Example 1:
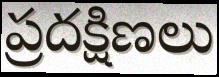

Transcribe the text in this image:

ప్రదక్షిణలు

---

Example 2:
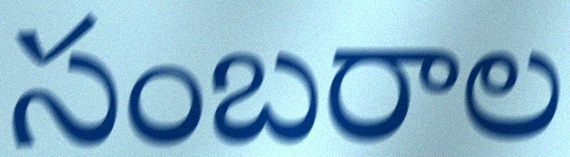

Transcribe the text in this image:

సంబరాల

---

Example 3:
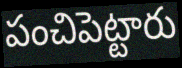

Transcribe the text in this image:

పంచిపెట్టారు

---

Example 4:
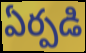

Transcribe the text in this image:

ఏర్పడి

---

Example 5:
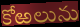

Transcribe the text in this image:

కోఱలును